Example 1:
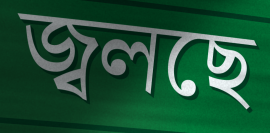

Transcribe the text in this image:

জ্বলছে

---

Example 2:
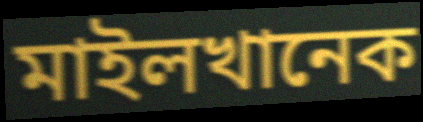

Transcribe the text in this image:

মাইলখানেক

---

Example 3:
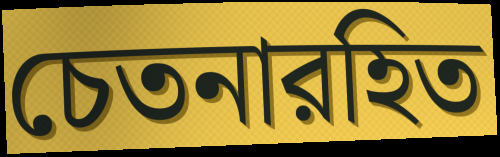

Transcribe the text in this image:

চেতনারহিত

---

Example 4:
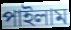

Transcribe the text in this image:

পাইলাম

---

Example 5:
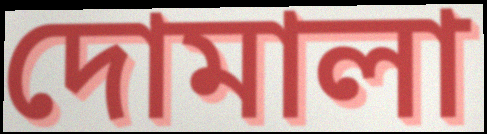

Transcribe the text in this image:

দোমালা